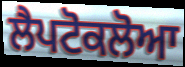
ਲੈਪਟੋਕਲੋਆ